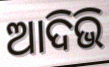
ଆଦିଭି